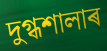
দুগ্ধশালাৰ